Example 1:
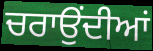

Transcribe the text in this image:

ਚਰਾਉਂਦੀਆਂ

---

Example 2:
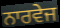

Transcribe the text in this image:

ਨਾਰਵੇਜ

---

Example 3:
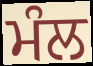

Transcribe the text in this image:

ਮੰਲ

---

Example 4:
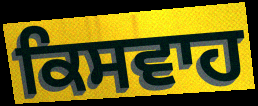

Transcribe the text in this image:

ਕਿਸਵਾਹ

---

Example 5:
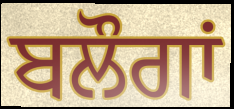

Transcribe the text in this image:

ਬਲੌਗਾਂ